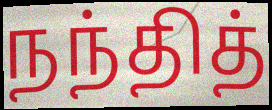
நந்தித்